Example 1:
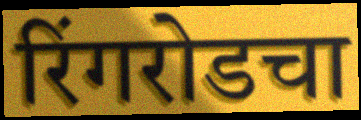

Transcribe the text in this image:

रिंगरोडचा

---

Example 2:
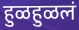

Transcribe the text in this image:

हुळहुळलं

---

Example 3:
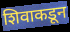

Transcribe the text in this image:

शिवाकडून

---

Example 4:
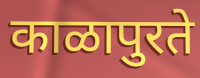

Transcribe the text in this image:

काळापुरते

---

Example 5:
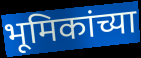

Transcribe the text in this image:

भूमिकांच्या